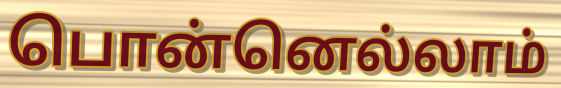
பொன்னெல்லாம்